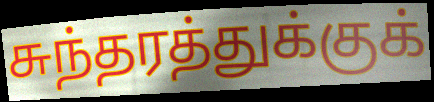
சுந்தரத்துக்குக்